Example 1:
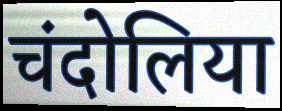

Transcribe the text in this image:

चंदोलिया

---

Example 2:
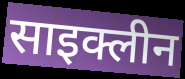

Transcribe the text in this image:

साइक्लीन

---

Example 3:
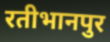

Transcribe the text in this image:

रतीभानपुर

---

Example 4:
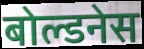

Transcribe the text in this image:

बोल्डनेस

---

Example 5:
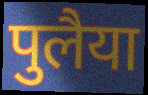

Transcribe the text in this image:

पुलैया